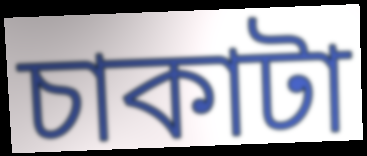
চাকাটা